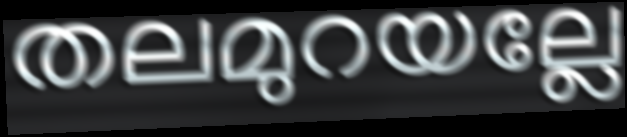
തലമുറയല്ലേ